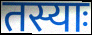
तस्याः